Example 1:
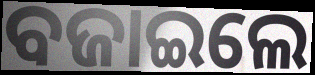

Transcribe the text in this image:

ବଜାଇଲେ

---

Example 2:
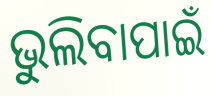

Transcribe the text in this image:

ଭୁଲିବାପାଇଁ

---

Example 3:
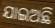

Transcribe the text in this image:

ଯାଇଅଛି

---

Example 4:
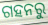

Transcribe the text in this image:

ଗହନରୁ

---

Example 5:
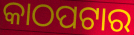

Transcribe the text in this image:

କାଠପଟାର